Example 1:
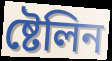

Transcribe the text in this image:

ষ্টেলিন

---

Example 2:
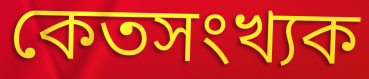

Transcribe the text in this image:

কেতসংখ্যক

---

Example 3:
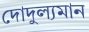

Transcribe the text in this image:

দোদুল্যমান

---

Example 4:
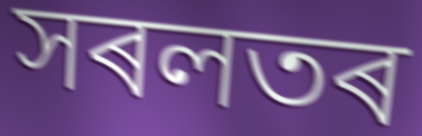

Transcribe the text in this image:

সৰলতৰ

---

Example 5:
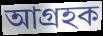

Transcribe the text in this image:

আগ্ৰহক